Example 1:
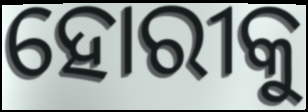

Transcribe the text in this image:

ହୋରୀକୁ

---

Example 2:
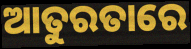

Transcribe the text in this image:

ଆତୁରତାରେ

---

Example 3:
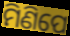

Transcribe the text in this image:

ମିଣିପେ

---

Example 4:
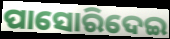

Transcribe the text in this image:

ପାସୋରିଦେଇ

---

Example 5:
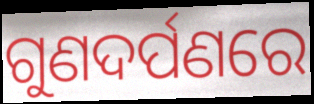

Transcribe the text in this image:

ଗୁଣଦର୍ପଣରେ